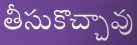
తీసుకొచ్చావు